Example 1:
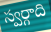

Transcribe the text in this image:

స్వర్గాది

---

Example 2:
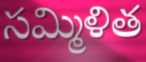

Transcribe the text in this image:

సమ్మిళిత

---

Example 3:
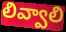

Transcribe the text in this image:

లివ్వాలి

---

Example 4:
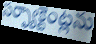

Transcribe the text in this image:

సర్ఫ్యాక్టెంట్లను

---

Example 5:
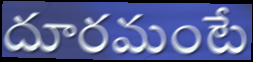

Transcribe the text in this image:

దూరమంటే